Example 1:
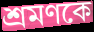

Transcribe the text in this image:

শ্রমণকে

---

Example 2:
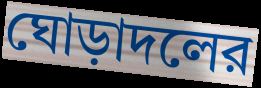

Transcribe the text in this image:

ঘোড়াদলের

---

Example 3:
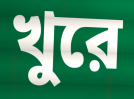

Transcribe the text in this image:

খুরে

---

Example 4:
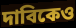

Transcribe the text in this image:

দাবিকেও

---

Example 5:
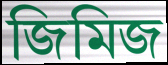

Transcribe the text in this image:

জিমিজ